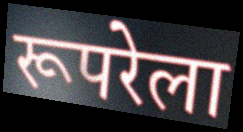
रूपरेला